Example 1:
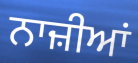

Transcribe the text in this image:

ਨਾਜ਼ੀਆਂ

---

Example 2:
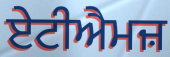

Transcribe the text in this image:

ਏਟੀਐਮਜ਼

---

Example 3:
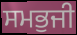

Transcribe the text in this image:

ਸਮਭੁਜੀ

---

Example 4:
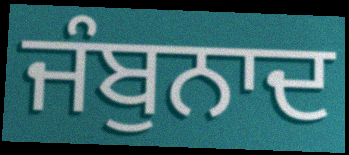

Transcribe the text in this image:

ਜੰਬੁਨਾਦ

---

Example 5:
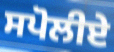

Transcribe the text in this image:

ਸਪੋਲੀਏ